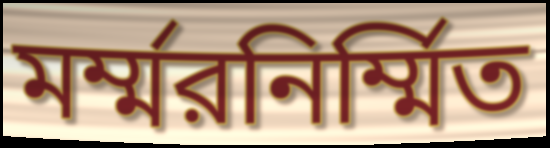
মর্ম্মরনির্ম্মিত